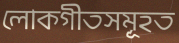
লোকগীতসমূহত